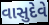
વાસુદેવે